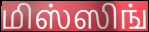
மிஸ்ஸிங்